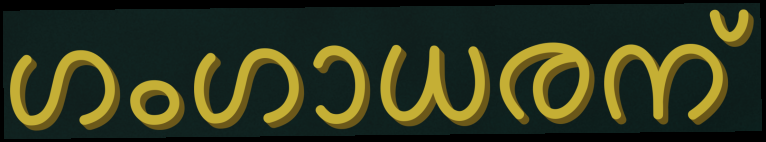
ഗംഗാധരന്